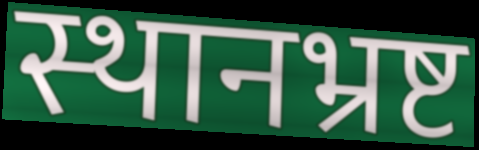
स्थानभ्रष्ट